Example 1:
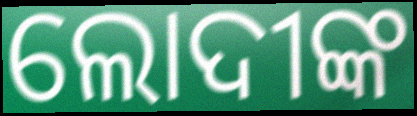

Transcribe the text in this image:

ଲୋଦୀଙ୍କ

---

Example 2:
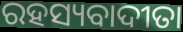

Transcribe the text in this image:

ରହସ୍ୟବାଦୀତା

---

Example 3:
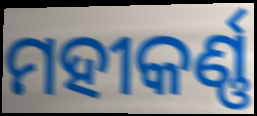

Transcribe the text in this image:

ମହୀକର୍ଣ୍ଣ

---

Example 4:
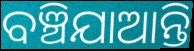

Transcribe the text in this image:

ବଞ୍ଚିଯାଆନ୍ତି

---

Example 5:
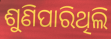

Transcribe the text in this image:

ଶୁଣିପାରିଥିଲି